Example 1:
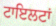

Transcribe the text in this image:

ਟਾਇਲਟਾਂ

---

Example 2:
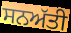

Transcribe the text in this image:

ਸਨਅੱਤੀ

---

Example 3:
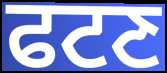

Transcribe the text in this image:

ਫਟਣ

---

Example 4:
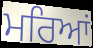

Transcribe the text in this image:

ਮਰਿਆਂ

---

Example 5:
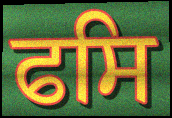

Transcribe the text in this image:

ਫਸਿ